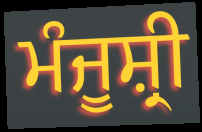
ਮੰਜੂਸ਼੍ਰੀ